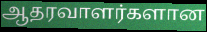
ஆதரவாளர்களான